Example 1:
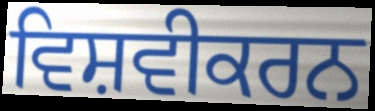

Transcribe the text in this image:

ਵਿਸ਼ਵੀਕਰਨ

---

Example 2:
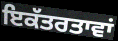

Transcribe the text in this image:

ਇਕੱਤਰਤਾਵਾਂ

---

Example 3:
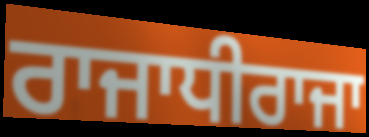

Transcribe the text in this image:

ਰਾਜਾਧੀਰਾਜਾ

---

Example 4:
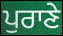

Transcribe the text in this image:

ਪੁਰਾਣੇ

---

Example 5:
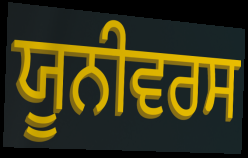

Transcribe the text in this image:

ਯੂਨੀਵਰਸ